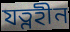
যত্নহীন